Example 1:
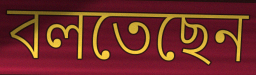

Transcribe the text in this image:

বলতেছেন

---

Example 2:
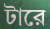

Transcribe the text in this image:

টারে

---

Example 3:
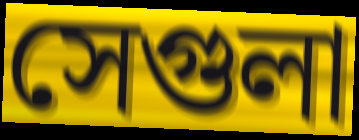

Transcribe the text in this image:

সেগুলা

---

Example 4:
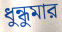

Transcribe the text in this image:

ধুন্ধুমার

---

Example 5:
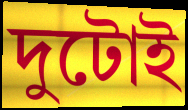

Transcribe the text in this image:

দুটোই